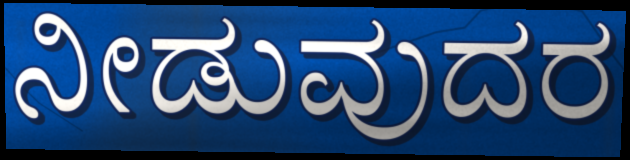
ನೀಡುವುದರ